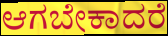
ಆಗಬೇಕಾದರೆ